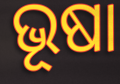
ଭୂଷା